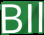
BIl